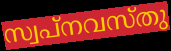
സ്വപ്നവസ്തു